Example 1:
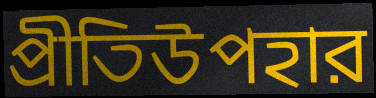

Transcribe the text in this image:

প্রীতিউপহার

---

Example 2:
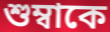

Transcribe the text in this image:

শুম্বাকে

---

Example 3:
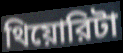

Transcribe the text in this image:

থিয়োরিটা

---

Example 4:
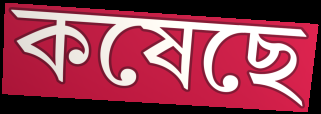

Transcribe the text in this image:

কষেছে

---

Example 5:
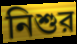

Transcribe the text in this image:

নিশুর